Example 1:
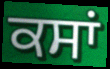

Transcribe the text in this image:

ਕਸਾਂ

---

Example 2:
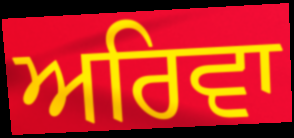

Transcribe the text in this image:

ਅਰਿਵਾ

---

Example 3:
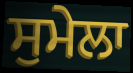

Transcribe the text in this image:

ਸੁਮੇਲਾ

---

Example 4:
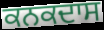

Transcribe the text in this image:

ਕਨਕਦਾਸ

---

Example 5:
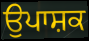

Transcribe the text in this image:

ਉਪਾਸ਼ਕ